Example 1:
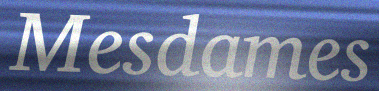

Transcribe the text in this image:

Mesdames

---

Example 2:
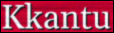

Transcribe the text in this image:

Kkantu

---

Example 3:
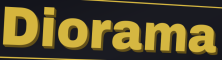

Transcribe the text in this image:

Diorama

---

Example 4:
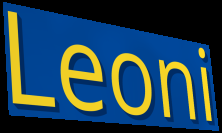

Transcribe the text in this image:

Leoni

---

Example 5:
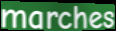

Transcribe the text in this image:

marches